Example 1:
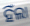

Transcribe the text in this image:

ହିଁଲା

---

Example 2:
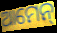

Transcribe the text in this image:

ଆମେନ୍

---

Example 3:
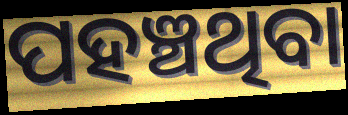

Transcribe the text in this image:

ପହଞ୍ଚଥିବା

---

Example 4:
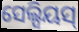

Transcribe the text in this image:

ସେଲ୍ସିୟସ୍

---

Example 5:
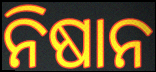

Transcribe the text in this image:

ନିଷାନ